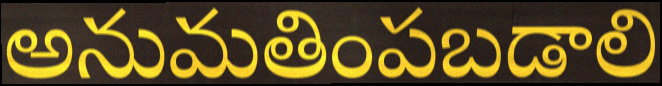
అనుమతింపబడాలి